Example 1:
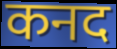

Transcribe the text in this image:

कनद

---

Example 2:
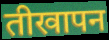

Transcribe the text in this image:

तीखापन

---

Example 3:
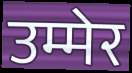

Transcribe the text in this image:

उम्मेर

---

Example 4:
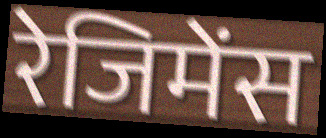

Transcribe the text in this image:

रेजिमेंस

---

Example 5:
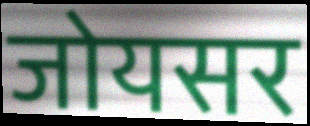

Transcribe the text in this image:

जोयसर